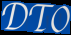
DTO